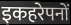
इकहरेपनों